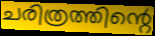
ചരിത്രത്തിന്റെ